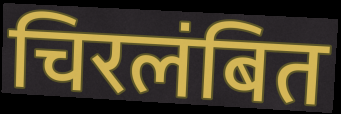
चिरलंबित